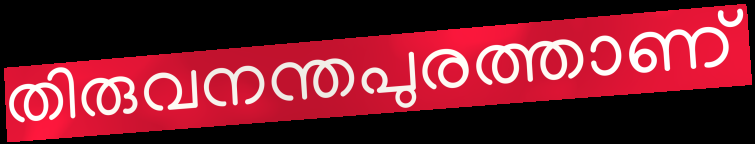
തിരുവനന്തപുരത്താണ്